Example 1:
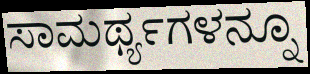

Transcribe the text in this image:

ಸಾಮರ್ಥ್ಯಗಳನ್ನೂ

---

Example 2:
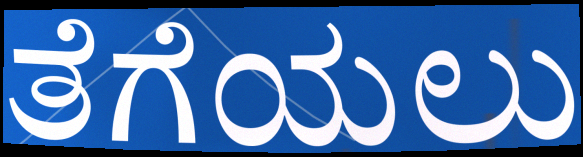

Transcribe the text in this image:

ತೆಗೆಯಲು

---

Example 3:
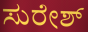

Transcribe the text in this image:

ಸುರೇಶ್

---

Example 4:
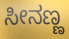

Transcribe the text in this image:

ಸೀನಣ್ಣ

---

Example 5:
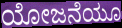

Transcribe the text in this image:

ಯೋಜನೆಯೂ